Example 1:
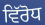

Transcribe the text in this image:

ਵਿੱਰੋਧ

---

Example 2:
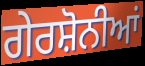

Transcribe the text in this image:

ਗੇਰਸ਼ੋਨੀਆਂ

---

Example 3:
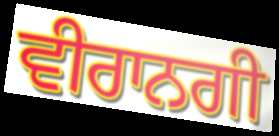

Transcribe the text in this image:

ਵੀਰਾਨਗੀ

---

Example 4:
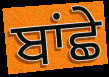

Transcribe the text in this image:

ਬਾਂਛੇ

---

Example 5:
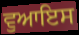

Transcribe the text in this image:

ਵੁਆਇਸ